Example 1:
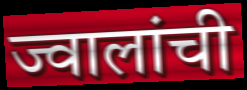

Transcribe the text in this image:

ज्वालांची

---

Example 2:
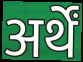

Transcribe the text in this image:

अर्थें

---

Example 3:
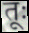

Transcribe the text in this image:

तूः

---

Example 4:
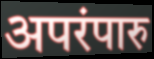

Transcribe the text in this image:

अपरंपारु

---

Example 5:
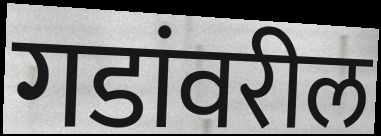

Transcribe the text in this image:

गडांवरील